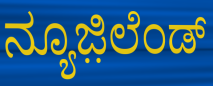
ನ್ಯೂಜ಼ಿಲೆಂಡ್